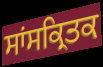
ਸਾਂਸਕ੍ਰਿਤਕ